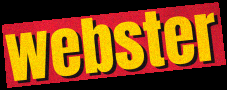
webster